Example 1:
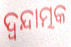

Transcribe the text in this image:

ଦ୍ୱନ୍ଦାତ୍ମକ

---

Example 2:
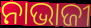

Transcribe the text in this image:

ନାଭାଜୀ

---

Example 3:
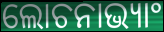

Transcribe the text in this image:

ଲୋଚନାଭ୍ୟାଂ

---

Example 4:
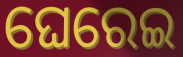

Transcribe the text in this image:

ଘେରେଇ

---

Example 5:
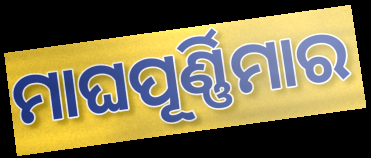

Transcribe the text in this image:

ମାଘପୂର୍ଣ୍ଣିମାର